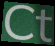
Ct